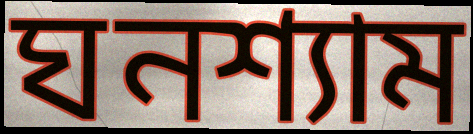
ঘনশ্যাম